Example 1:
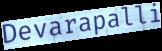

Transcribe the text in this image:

Devarapalli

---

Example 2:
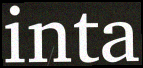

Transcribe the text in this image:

inta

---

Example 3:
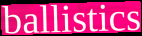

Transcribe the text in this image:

ballistics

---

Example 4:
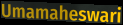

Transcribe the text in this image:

Umamaheswari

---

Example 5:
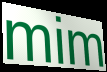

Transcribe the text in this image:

mim